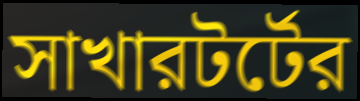
সাখারটর্টের